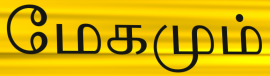
மேகமும்